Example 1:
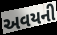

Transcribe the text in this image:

અવયની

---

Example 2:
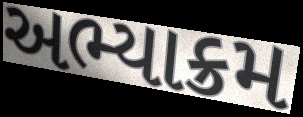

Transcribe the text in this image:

અભ્યાક્રમ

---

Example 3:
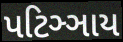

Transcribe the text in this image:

પટિઞ્ઞાય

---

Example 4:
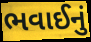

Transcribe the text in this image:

ભવાઈનું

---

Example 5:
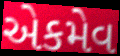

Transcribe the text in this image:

એકમેવ